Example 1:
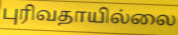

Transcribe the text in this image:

புரிவதாயில்லை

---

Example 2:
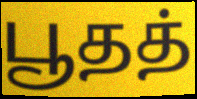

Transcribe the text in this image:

பூதத்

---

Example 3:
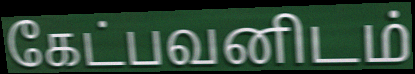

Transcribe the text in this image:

கேட்பவனிடம்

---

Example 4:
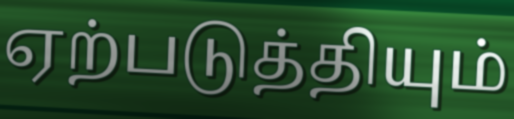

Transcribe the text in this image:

ஏற்படுத்தியும்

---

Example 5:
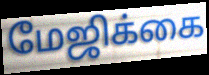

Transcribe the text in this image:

மேஜிக்கை